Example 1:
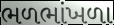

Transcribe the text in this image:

ભળભાંખળા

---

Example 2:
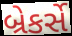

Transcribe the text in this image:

બ્રેકર્સે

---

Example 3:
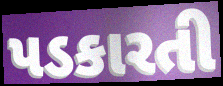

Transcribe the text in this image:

પડકારતી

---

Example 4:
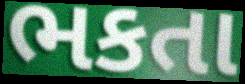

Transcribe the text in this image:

ભકતા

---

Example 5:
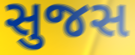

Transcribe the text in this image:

સુજસ